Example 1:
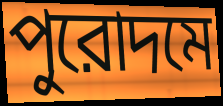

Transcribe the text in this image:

পুরোদমে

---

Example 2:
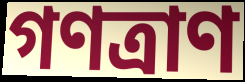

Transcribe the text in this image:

গণত্রাণ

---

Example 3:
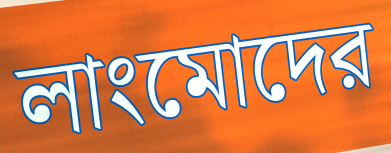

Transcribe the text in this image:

লাংমোদের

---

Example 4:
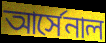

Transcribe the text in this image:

আর্সেনাল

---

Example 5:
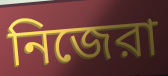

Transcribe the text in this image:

নিজেরা